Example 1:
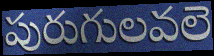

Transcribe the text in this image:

పురుగులవలె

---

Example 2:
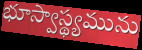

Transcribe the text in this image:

భూస్వాస్థ్యమును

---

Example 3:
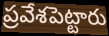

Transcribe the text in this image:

ప్రవేశపెట్టారు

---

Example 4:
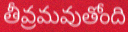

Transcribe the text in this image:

తీవ్రమవుతోంది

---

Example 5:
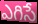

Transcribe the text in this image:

ఎగిసే